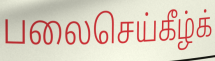
பலைசெய்கீழ்க்